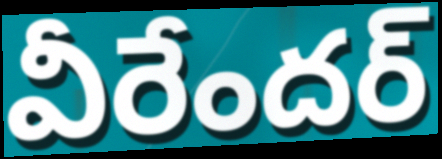
వీరేందర్